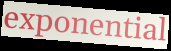
exponential